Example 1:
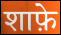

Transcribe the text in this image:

शाफ़े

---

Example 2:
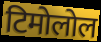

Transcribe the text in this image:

टिमोलोल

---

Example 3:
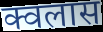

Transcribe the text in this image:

क्वलास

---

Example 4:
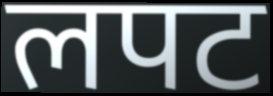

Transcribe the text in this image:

लपट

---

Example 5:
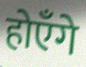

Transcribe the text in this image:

होएँगे